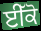
ਈੱਕੋ